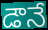
డౌనే